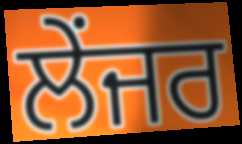
ਲੇਂਜਰ